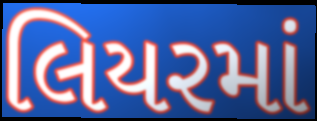
લિયરમાં